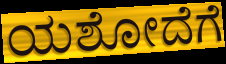
ಯಶೋದೆಗೆ